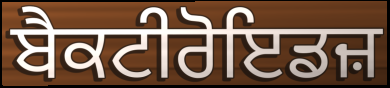
ਬੈਕਟੀਰੋਇਡਜ਼